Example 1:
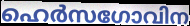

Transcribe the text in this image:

ഹെർസഗോവിന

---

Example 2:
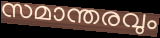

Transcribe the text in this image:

സമാന്തരവും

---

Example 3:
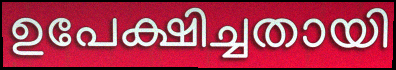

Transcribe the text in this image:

ഉപേക്ഷിച്ചതായി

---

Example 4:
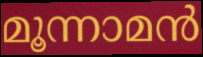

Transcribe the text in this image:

മൂന്നാമൻ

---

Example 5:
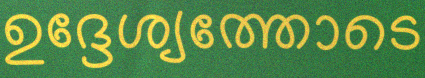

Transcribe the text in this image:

ഉദ്ദേശ്യത്തോടെ